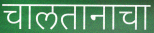
चालतानाचा